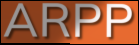
ARPP